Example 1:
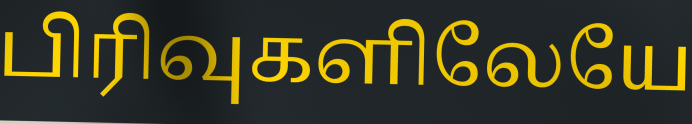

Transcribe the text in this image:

பிரிவுகளிலேயே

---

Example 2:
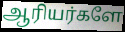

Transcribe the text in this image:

ஆரியர்களே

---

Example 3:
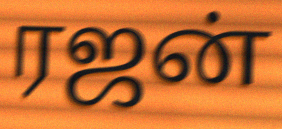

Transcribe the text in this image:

ரஜன்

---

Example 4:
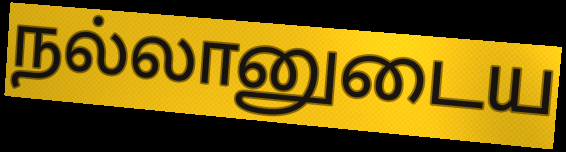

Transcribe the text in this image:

நல்லானுடைய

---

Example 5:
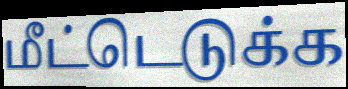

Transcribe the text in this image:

மீட்டெடுக்க